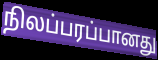
நிலப்பரப்பானது